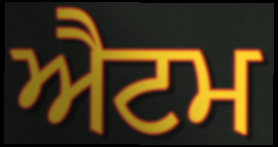
ਐਟਮ